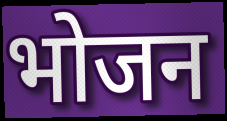
भोजन